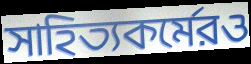
সাহিত্যকর্মেরও